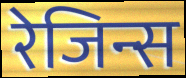
रेजिन्स